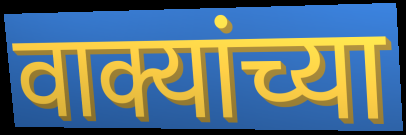
वाक्यांच्या